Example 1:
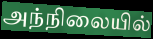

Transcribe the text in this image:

அந்நிலையில்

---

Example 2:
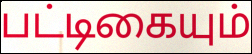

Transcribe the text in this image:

பட்டிகையும்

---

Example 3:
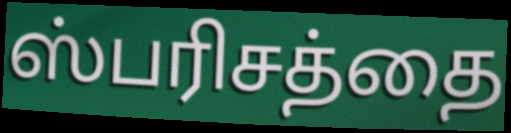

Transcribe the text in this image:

ஸ்பரிசத்தை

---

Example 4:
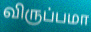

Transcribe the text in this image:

விருப்பமா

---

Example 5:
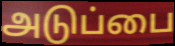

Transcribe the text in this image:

அடுப்பை